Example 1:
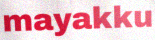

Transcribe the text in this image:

mayakku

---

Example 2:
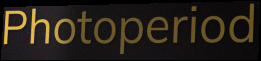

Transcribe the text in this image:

Photoperiod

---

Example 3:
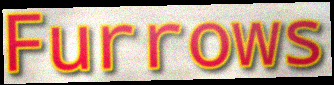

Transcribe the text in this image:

Furrows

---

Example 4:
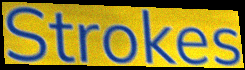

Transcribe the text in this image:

Strokes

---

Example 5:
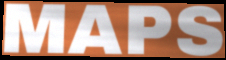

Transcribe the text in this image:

MAPS